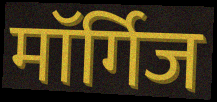
मॉर्गिज